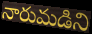
నారుమడిని